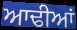
ਆਢੀਆਂ